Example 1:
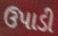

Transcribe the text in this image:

ઉપાડી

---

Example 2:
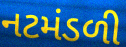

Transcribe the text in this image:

નટમંડળી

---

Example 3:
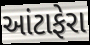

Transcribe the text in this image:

આંટાફેરા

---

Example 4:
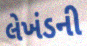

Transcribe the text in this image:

લેખંડની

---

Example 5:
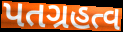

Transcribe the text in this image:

પતગ્રહત્વ